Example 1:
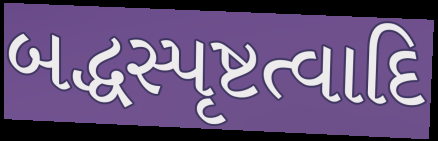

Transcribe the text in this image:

બદ્ધસ્પૃષ્ટત્વાદિ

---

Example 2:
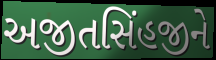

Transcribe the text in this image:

અજીતસિંહજીને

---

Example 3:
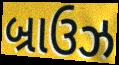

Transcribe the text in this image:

બ્રાઉઝ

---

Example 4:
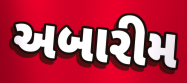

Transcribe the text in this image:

અબારીમ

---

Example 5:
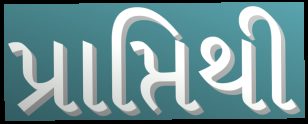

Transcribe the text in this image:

પ્રાપ્તિથી